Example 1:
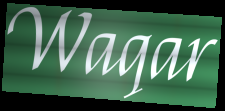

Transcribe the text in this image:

Waqar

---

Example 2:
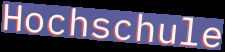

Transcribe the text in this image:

Hochschule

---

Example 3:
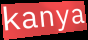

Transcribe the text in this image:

kanya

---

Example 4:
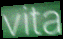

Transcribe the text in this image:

vita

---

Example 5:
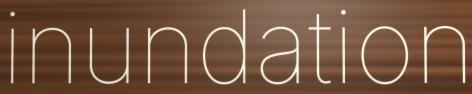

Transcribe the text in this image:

inundation